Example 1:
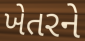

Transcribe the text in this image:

ખેતરને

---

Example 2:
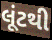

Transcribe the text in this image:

લૂંટથી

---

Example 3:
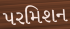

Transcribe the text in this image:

પરમિશન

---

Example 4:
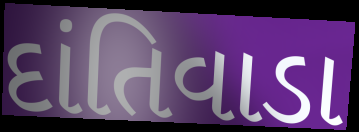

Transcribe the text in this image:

દાંતિવાડા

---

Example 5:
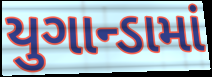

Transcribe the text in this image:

યુગાન્ડામાં